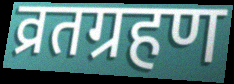
व्रतग्रहण